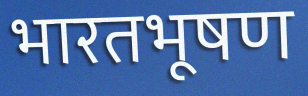
भारतभूषण